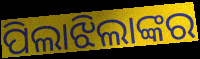
ପିଲାଝିଲାଙ୍କର